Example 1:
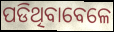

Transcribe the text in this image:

ପଡିଥିବାବେଳେ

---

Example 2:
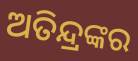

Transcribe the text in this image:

ଅତିନ୍ଦ୍ରଙ୍କର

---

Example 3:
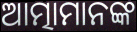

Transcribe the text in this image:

ଆତ୍ମାମାନଙ୍କ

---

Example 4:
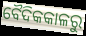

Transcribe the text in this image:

ବୈଦିକକାଳରୁ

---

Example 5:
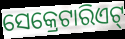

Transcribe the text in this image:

ସେକ୍ରେଟାରିଏଟ୍